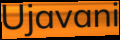
Ujavani